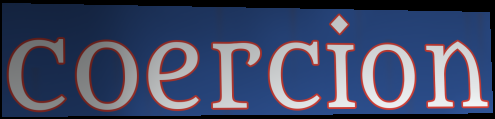
coercion